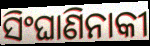
ସିଂଘାଣିନାକୀ